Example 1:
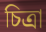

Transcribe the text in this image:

চিত্রা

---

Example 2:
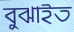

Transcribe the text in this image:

বুঝাইত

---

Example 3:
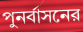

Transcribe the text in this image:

পুনর্বাসনের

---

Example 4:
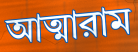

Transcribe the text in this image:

আত্মারাম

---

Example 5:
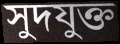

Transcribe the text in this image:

সুদযুক্ত